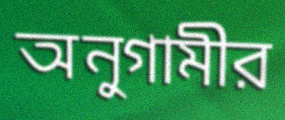
অনুগামীর